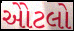
એોટલો